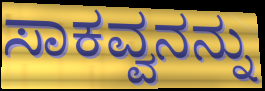
ಸಾಕವ್ವನನ್ನು